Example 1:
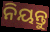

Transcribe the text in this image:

ନିୟନ୍ତୁ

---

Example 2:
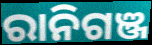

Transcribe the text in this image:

ରାନିଗଞ୍ଜ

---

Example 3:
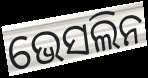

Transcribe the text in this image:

ଭେସଲିନ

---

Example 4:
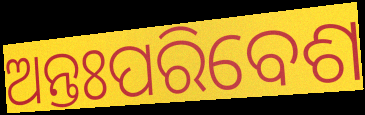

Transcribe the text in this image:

ଅନ୍ତଃପରିବେଶ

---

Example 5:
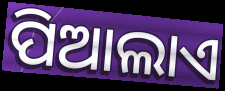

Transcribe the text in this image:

ପିଆଲାଏ